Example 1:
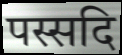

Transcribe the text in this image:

पस्सदि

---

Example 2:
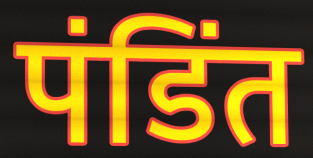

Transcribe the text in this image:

पंडिंत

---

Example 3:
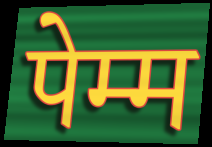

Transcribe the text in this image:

पेम्म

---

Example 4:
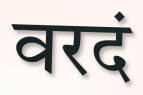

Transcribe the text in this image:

वरदं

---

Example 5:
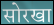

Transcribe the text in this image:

सोरखा